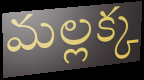
మల్లక్క